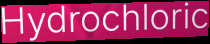
Hydrochloric